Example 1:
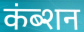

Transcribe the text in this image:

कंब्शन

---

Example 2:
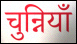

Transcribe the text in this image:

चुन्नियाँ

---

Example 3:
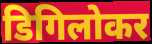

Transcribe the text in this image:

डिगिलोकर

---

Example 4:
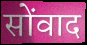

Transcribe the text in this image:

सोंवाद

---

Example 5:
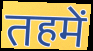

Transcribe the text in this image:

तहमें